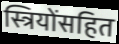
स्त्रियोंसहित